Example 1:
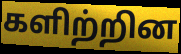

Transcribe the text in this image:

களிற்றின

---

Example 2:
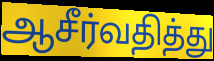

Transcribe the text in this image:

ஆசீர்வதித்து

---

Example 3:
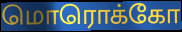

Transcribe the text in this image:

மொரொக்கோ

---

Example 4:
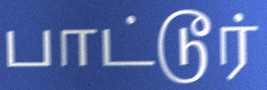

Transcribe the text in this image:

பாட்டூர்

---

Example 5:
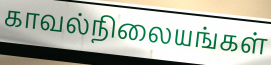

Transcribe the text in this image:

காவல்நிலையங்கள்